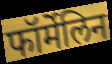
फॉर्मेलिन